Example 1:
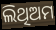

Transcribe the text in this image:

ଲିଥିଅମ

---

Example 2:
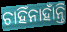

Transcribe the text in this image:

ଚାହିଁନାହାଁନ୍ତି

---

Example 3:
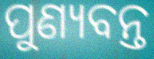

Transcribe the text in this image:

ପୁଣ୍ୟବନ୍ତ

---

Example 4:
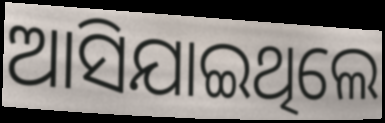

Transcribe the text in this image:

ଆସିଯାଇଥିଲେ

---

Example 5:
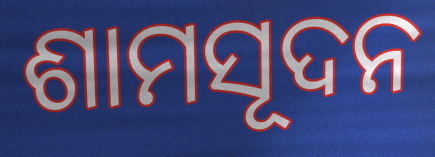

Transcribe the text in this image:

ଶାମସୂଦନ